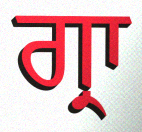
ਗ੍ਰਾ